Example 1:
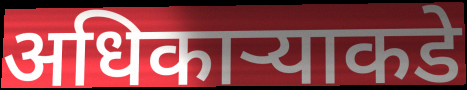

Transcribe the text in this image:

अधिकार्‍याकडे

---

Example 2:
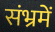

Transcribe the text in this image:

संभ्रमें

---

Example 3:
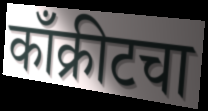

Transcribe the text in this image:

काँक्रीटचा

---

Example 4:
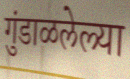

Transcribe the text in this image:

गुंडाळलेल्या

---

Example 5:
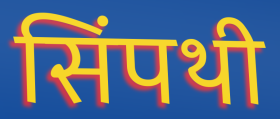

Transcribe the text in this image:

सिंपथी